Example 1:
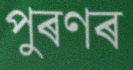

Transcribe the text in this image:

পুৰণৰ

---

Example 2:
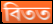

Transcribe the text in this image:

বিতত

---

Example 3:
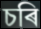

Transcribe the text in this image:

চৰি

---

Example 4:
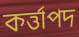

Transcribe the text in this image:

কৰ্ত্তাপদ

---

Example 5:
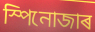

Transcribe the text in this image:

স্পিনোজাৰ